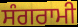
ਸੰਗਰਾਮੀ